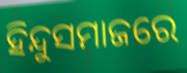
ହିନ୍ଦୁସମାଜରେ